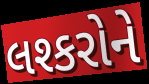
લશ્કરોને